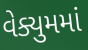
વેક્યુમમાં